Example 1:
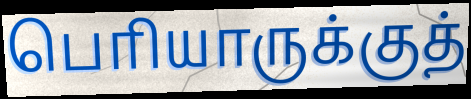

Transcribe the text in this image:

பெரியாருக்குத்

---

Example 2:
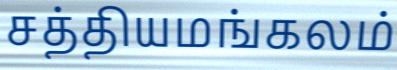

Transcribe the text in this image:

சத்தியமங்கலம்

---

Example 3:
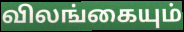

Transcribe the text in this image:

விலங்கையும்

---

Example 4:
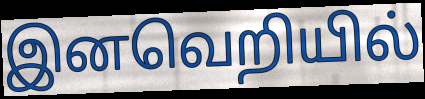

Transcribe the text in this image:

இனவெறியில்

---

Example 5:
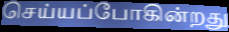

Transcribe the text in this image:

செய்யப்போகின்றது